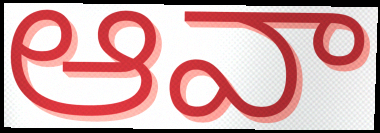
ఆవా